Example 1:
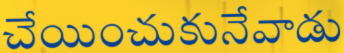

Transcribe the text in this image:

చేయించుకునేవాడు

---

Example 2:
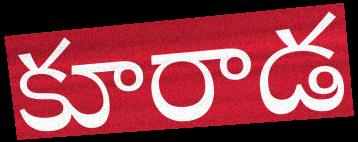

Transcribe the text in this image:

కూరాడ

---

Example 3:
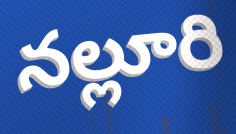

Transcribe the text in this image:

నల్లూరి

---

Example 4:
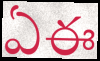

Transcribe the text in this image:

ఏఈ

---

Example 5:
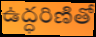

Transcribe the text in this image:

ఉద్ధరిణితో